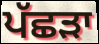
ਪੱਛੜਾ